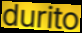
durito